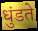
धुंडते